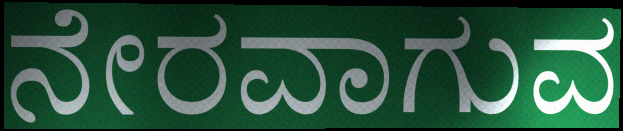
ನೇರವಾಗುವ